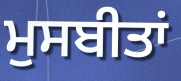
ਮੁਸਬੀਤਾਂ